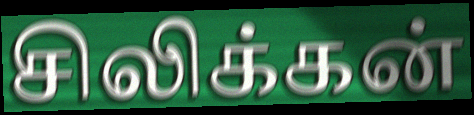
சிலிக்கன்